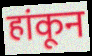
हांकून